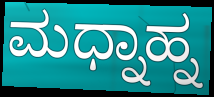
ಮಧ್ನಾಹ್ನ